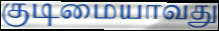
குடிமையாவது